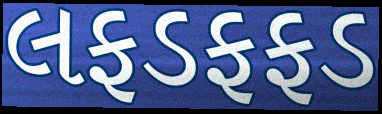
લફડફફડ